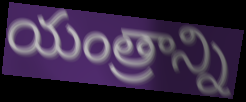
యంత్రాన్ని